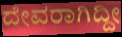
ದೇವರಾಗಿದ್ದೀ